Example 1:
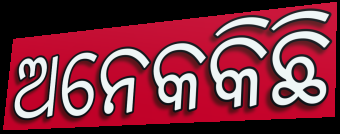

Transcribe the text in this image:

ଅନେକକିଛି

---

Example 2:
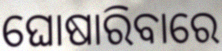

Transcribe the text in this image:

ଘୋଷାରିବାରେ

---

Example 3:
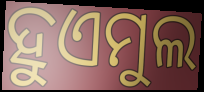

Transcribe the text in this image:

ହୁଏମୁଲ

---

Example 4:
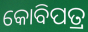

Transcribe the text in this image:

କୋବିପତ୍ର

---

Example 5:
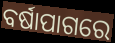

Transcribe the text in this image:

ବର୍ଷାପାଗରେ